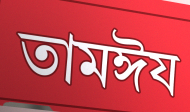
তামঈয